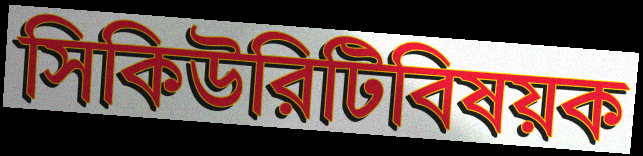
সিকিউরিটিবিষয়ক